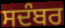
ਸਦੰਬਰ